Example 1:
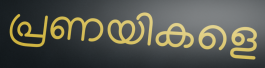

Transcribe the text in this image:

പ്രണയികളെ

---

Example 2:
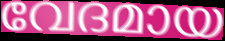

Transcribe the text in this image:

വേദമായ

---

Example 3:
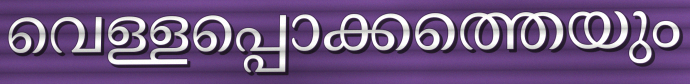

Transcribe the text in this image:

വെള്ളപ്പൊക്കത്തെയും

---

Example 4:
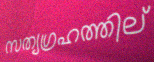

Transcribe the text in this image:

സത്യഗ്രഹത്തില്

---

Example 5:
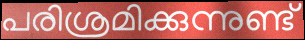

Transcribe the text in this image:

പരിശ്രമിക്കുന്നുണ്ട്